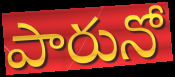
పారునో